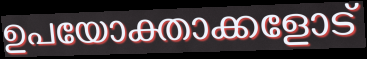
ഉപയോക്താക്കളോട്